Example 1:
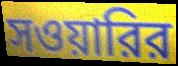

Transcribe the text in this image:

সওয়ারির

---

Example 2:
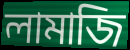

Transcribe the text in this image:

লামাজি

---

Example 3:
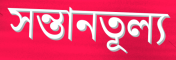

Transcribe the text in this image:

সন্তানতূল্য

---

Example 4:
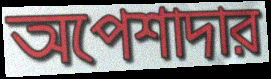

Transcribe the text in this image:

অপেশাদার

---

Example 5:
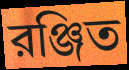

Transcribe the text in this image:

রঞ্জিত